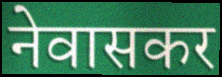
नेवासकर